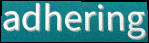
adhering